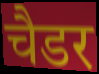
चैडर